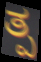
ತ್ಪ